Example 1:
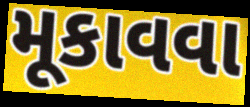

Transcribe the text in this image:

મૂકાવવા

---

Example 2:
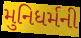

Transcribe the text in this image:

મુનિધર્મની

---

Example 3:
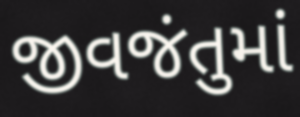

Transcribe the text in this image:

જીવજંતુમાં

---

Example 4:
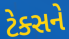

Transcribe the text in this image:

ટેક્સને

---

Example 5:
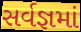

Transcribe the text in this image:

સર્વજ્ઞમાં